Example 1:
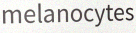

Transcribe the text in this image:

melanocytes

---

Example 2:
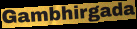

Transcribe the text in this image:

Gambhirgada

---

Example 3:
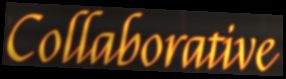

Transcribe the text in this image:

Collaborative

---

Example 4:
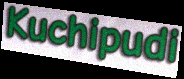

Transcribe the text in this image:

Kuchipudi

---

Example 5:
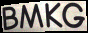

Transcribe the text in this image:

BMKG